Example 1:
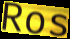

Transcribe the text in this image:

Ros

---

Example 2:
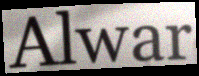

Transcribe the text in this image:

Alwar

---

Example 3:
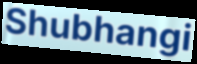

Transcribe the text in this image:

Shubhangi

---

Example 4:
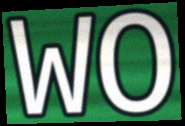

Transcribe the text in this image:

WO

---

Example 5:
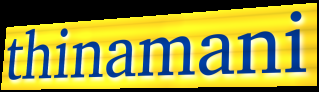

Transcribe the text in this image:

thinamani